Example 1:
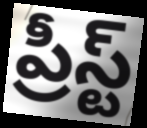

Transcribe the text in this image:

ప్రీస్ట్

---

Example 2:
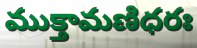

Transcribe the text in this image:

ముక్తామణిధరః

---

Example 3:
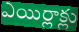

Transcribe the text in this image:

ఎయిర్లాక్లు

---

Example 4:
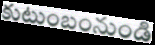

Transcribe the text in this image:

కుటుంబంనుండి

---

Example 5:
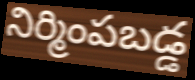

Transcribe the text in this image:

నిర్మింపబడ్డ